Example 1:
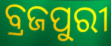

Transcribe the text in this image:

ବ୍ରଜପୁରୀ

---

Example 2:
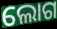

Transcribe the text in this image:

ଲୋଗ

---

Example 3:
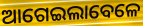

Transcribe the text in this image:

ଆଗେଇଲାବେଳେ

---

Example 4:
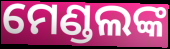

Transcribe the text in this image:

ମେଣ୍ଡଲଙ୍କ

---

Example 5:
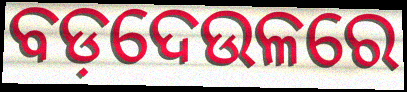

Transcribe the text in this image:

ବଡ଼ଦେଉଳରେ